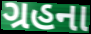
ગ્રહના